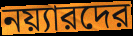
নয়্যারদের